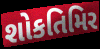
શોકતિમિર